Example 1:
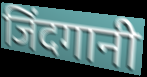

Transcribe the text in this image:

जिंदगानी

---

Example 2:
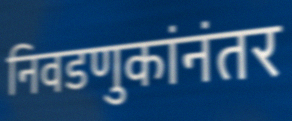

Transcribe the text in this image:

निवडणुकांनंतर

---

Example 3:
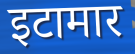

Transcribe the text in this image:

इटामार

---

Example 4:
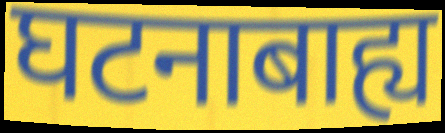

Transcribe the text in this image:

घटनाबाह्य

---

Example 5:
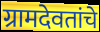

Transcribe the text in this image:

ग्रामदेवतांचे